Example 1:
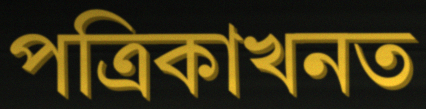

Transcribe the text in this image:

পত্ৰিকাখনত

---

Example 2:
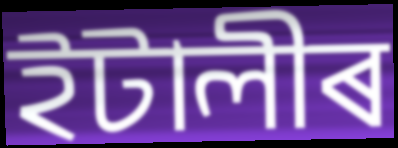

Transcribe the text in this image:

ইটালীৰ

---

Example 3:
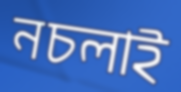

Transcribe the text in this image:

নচলাই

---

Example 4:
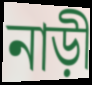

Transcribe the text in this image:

নাড়ী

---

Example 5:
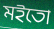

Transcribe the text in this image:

মইতো